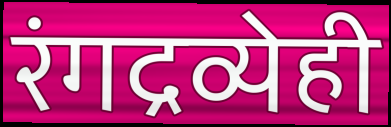
रंगद्रव्येही